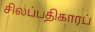
சிலப்பதிகாரப்